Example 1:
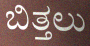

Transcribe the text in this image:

ಬಿತ್ತಲು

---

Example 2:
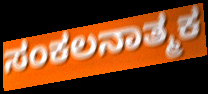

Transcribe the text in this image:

ಸಂಕಲನಾತ್ಮಕ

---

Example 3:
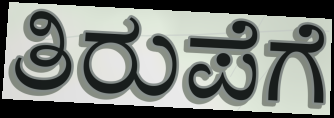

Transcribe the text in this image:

ತಿರುಪೆಗೆ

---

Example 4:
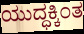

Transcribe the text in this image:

ಯುದ್ಧಕ್ಕಿಂತ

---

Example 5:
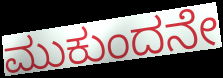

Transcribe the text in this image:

ಮುಕುಂದನೇ